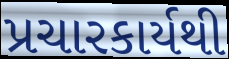
પ્રચારકાર્યથી